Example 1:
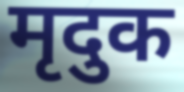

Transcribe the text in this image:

मृदुक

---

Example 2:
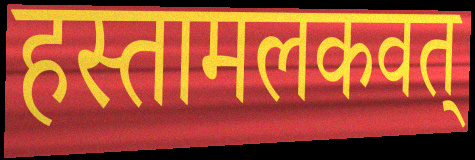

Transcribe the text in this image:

हस्तामलकवत्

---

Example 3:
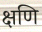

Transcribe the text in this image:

क्षणि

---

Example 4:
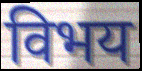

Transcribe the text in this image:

विभय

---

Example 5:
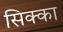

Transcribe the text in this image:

सिक्‍का